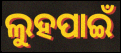
ଲୁହପାଇଁ